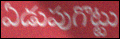
ఏడుపుగొట్టు